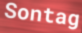
Sontag